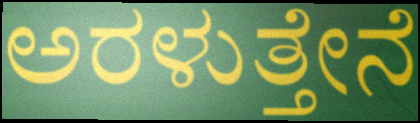
ಅರಳುತ್ತೇನೆ